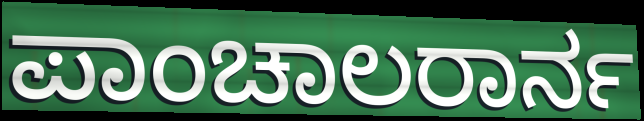
ಪಾಂಚಾಲರಾರ್ನ